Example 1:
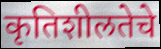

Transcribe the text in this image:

कृतिशीलतेचे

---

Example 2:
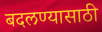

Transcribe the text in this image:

बदलण्यासाठी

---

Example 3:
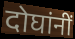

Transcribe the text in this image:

दोघांनीं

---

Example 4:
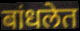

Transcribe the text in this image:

बांधलेत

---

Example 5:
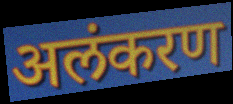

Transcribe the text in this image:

अलंकरण